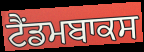
ਟੈਂਡਮਬਾਕਸ